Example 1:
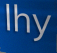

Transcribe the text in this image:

lhy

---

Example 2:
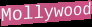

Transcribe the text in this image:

Mollywood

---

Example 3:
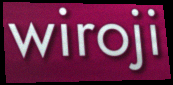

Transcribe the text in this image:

wiroji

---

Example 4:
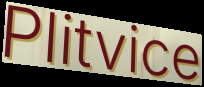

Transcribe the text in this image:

Plitvice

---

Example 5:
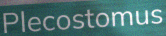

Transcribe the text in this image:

Plecostomus